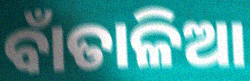
ବାଁତାଳିଆ